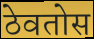
ठेवतोस